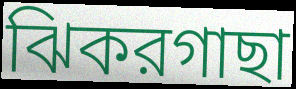
ঝিকরগাছা